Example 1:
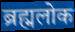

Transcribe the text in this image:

ब्रह्मलोक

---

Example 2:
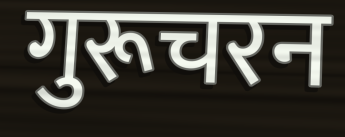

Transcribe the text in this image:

गुरूचरन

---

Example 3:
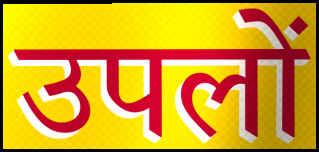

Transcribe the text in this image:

उपलों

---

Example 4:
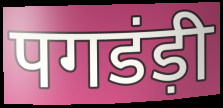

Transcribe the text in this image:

पगडंड़ी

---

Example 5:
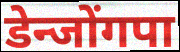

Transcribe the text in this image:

डेन्जोंगपा